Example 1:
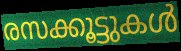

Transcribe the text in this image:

രസക്കൂട്ടുകൾ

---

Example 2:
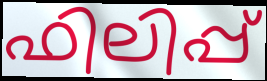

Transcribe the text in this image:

ഫിലിപ്പ്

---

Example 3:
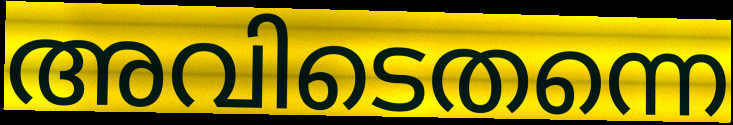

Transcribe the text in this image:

അവിടെതന്നെ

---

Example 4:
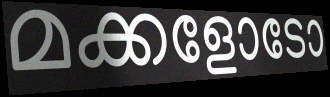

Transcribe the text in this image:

മക്കളോടോ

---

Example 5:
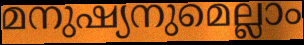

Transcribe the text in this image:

മനുഷ്യനുമെല്ലാം